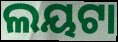
ଲୟଟା